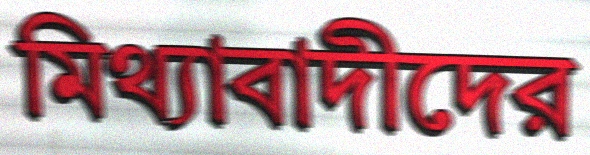
মিথ্যাবাদীদের